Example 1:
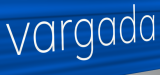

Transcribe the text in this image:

vargada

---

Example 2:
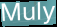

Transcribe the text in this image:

Muly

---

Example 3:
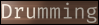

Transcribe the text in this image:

Drumming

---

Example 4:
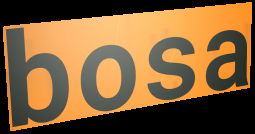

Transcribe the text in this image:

bosa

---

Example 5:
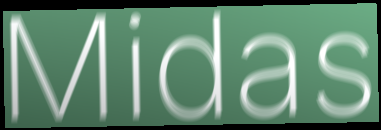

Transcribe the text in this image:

Midas